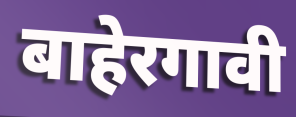
बाहेरगावी